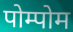
पोम्पोम